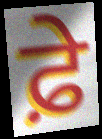
ਫ਼ੇ